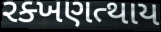
રક્ખણત્થાય